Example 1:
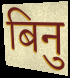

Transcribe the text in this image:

बिनु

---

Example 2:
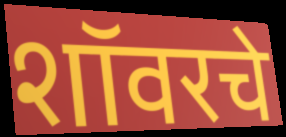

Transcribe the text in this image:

शॉवरचे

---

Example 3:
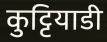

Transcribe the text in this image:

कुट्टियाडी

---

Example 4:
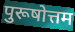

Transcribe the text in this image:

पुरूषोत्तम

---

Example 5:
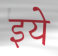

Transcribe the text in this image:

इये